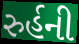
રુર્હની